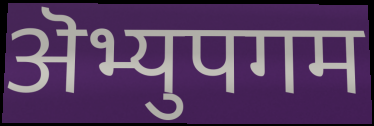
ऄभ्युपगम